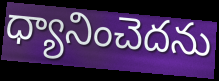
ధ్యానించెదను